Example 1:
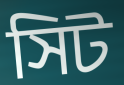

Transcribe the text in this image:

সিট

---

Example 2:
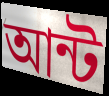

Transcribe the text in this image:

আন্ট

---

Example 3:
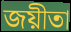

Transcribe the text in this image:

জয়ীতা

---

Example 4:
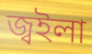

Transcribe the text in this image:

জ্বইলা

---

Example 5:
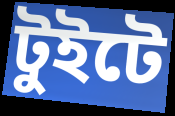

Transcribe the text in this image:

টুইটে